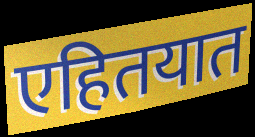
एहितयात